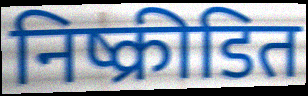
निष्क्रीडित